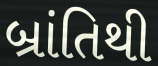
બ્રાંતિથી